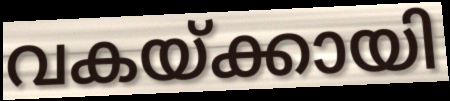
വകയ്ക്കായി